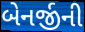
બેનર્જીની